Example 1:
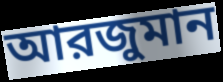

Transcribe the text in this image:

আরজুমান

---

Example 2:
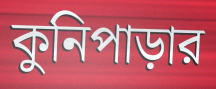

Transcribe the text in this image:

কুনিপাড়ার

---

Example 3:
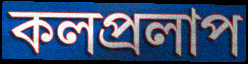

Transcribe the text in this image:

কলপ্রলাপ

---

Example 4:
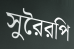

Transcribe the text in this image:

সুরৈরপি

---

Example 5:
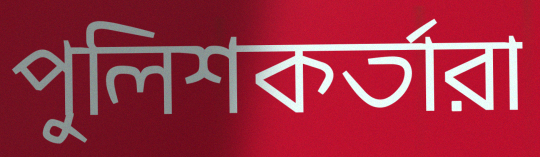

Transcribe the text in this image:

পুলিশকর্তারা